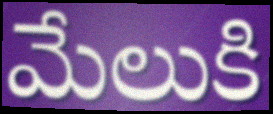
మేలుకి